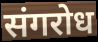
संगरोध